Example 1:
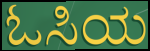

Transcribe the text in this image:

ಓಸಿಯ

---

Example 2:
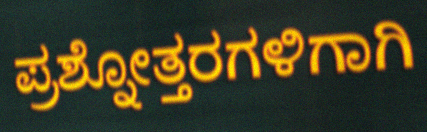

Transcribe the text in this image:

ಪ್ರಶ್ನೋತ್ತರಗಳಿಗಾಗಿ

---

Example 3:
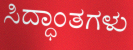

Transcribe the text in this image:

ಸಿದ್ಧಾಂತಗಳು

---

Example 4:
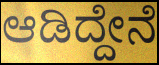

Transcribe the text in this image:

ಆಡಿದ್ದೇನೆ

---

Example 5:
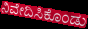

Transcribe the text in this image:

ನಿವೇದಿಸಿಕೊಂಡು